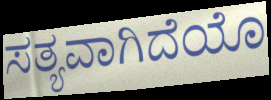
ಸತ್ಯವಾಗಿದೆಯೊ